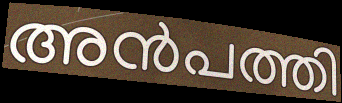
അൻപത്തി